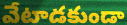
వేటాడకుండా